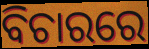
ବିଚାରରେ